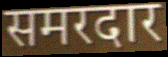
समरदार